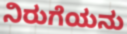
ನಿರುಗೆಯನು